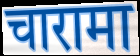
चारामा